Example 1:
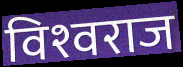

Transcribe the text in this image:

विश्वराज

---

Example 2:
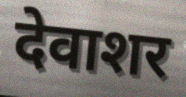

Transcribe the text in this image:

देवाशर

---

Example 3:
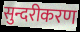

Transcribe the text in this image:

सुन्दरीकरण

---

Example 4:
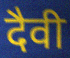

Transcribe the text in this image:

दैवी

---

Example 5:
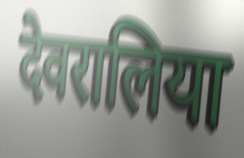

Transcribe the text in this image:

देवरालिया